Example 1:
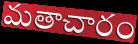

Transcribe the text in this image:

మతాచారం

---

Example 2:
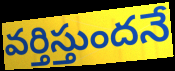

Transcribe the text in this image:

వర్తిస్తుందనే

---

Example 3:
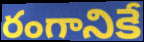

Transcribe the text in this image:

రంగానికే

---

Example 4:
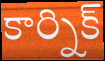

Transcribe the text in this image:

కార్నిక్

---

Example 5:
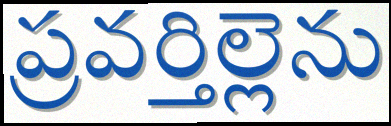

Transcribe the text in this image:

ప్రవర్తిల్లెను